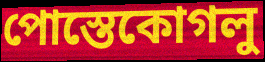
পোস্তেকোগলু